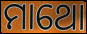
ମାଥୋ